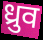
ध्रुव